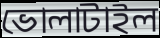
ভোলাটাইল